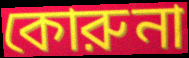
কোরুনা